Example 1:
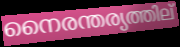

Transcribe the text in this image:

നൈരന്തര്യത്തില്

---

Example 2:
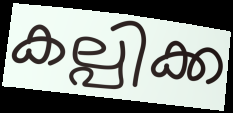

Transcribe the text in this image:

കല്പിക്ക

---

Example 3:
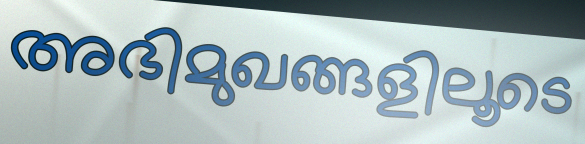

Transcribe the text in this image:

അഭിമുഖങ്ങളിലൂടെ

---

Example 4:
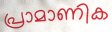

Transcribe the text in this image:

പ്രാമാണിക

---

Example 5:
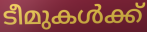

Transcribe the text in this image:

ടീമുകൾക്ക്